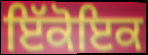
ਇੱਕੋਇਕ